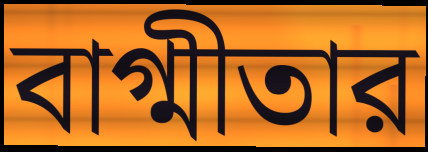
বাগ্মীতার